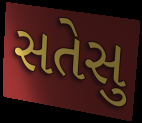
સતેસુ